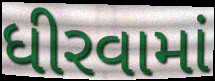
ધીરવામાં